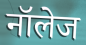
नॉलेज